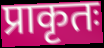
प्राकृतः